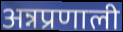
अन्नप्रणाली